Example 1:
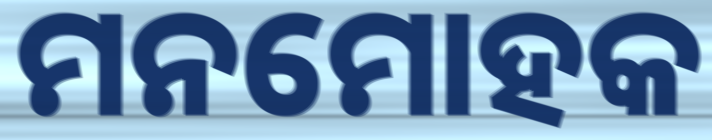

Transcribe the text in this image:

ମନମୋହକ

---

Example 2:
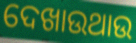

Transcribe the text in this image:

ଦେଖାଉଥାଉ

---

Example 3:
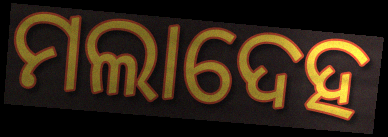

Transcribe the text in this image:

ମଲାଦେହ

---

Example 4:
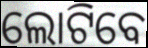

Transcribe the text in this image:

ଲୋଟିବେ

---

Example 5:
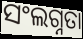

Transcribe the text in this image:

ସଂଲଗ୍ନତା